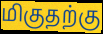
மிகுதற்கு